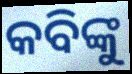
କବିଙ୍କୁ